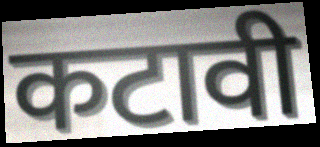
कटावी